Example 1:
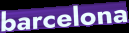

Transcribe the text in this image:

barcelona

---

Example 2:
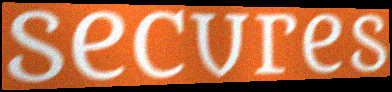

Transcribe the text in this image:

secures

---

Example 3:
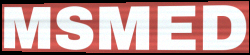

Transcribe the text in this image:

MSMED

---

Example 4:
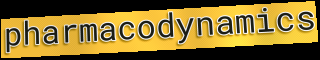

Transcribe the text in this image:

pharmacodynamics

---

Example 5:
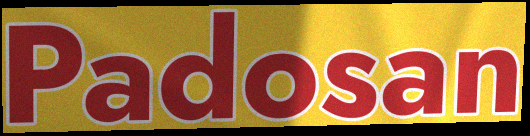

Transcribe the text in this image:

Padosan